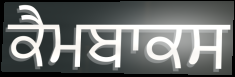
ਕੈਮਬਾਕਸ